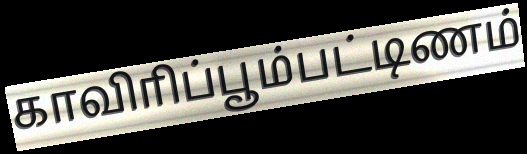
காவிரிப்பூம்பட்டிணம்